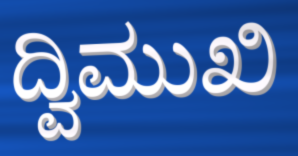
ದ್ವಿಮುಖಿ